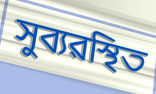
সুব্যৱস্থিত